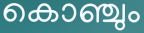
കൊഞ്ചും